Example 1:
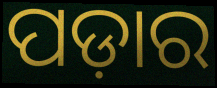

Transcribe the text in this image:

ପଡ଼ାର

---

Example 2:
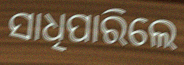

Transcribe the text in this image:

ସାଧିପାରିଲେ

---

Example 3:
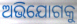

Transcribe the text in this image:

ଅଭିଯୋଗକୁ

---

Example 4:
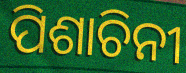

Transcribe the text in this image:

ପିଶାଚିନୀ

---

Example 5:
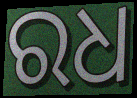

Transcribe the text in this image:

ରଧ